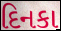
દિનકા